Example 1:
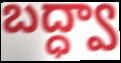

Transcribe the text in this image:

బద్ధ్వా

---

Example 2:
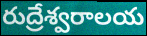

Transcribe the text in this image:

రుద్రేశ్వరాలయ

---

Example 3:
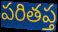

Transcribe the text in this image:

పరితప్త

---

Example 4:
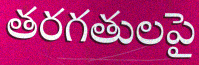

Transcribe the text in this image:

తరగతులపై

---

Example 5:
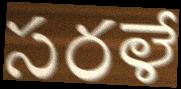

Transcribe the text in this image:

సరళే